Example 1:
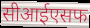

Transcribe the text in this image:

सीआईएसफ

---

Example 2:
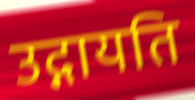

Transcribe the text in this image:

उद्गायति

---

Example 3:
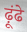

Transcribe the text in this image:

ढ़ूंढे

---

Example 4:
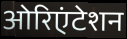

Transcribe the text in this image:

ओरिएंटेशन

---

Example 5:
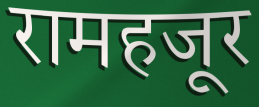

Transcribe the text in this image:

रामहजूर